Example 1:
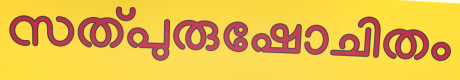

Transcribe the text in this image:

സത്പുരുഷോചിതം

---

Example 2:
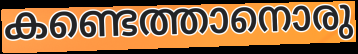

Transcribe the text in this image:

കണ്ടെത്താനൊരു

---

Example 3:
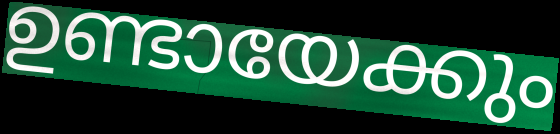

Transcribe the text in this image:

ഉണ്ടായേക്കും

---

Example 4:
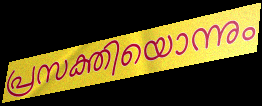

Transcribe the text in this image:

പ്രസക്തിയൊന്നും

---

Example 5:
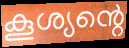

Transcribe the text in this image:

കൂശ്യന്റെ